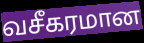
வசீகரமான